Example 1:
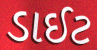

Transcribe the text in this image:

ડાઈટ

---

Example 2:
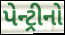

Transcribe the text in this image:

પેન્ટ્રીનો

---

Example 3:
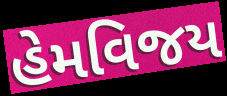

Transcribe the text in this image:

હેમવિજય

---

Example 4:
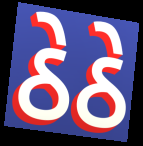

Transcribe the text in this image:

ઠેઠે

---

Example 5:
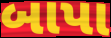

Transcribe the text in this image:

બાપા